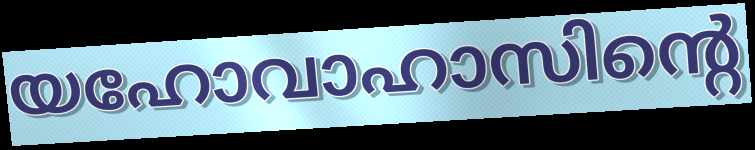
യഹോവാഹാസിന്റെ